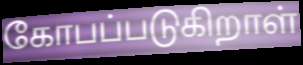
கோபப்படுகிறாள்